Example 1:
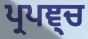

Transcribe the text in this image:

ਪ੍ਰਪਞ੍ਚ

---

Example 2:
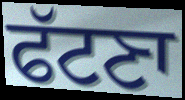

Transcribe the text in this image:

ਫੱਟਣਾ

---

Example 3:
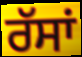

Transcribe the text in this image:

ਰੱਸਾਂ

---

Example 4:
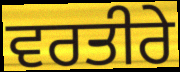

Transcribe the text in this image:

ਵਰਤੀਰੇ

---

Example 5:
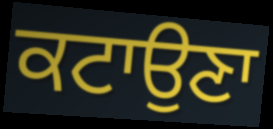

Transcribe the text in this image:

ਕਟਾਉਣਾ